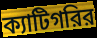
ক্যাটিগরির